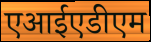
एआईएडीएम